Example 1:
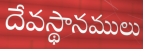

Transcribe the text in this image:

దేవస్థానములు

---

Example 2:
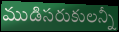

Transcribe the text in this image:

ముడిసరుకులన్నీ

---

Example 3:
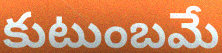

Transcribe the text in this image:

కుటుంబమే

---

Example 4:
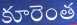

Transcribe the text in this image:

కూరెంత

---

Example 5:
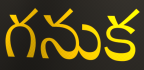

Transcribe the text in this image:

గనుక